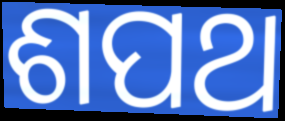
ଶପଥ